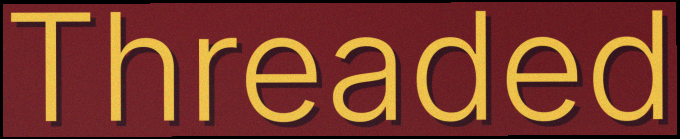
Threaded